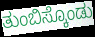
ತುಂಬಿಸ್ಕೊಂಡು